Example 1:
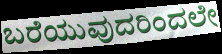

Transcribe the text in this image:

ಬರೆಯುವುದರಿಂದಲೇ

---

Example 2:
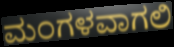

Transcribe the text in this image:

ಮಂಗಳವಾಗಲಿ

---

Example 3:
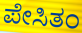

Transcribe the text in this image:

ಪೇಸಿತಂ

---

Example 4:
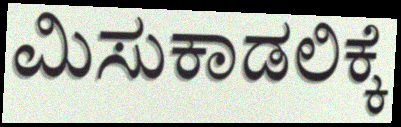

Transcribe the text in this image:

ಮಿಸುಕಾಡಲಿಕ್ಕೆ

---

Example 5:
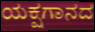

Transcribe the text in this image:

ಯಕ್ಷಗಾನದ